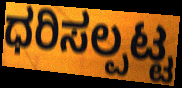
ಧರಿಸಲ್ಪಟ್ಟ